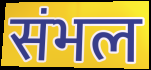
संभल